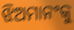
ଝିଅମାନଂକୁ